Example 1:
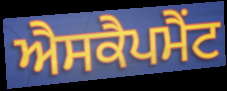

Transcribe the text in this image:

ਐਸਕੈਪਮੈਂਟ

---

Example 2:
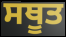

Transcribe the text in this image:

ਸਥੂਤ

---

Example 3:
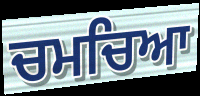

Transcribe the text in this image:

ਚਮਚਿਆ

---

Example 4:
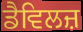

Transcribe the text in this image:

ਡੈਵਿਲਜ਼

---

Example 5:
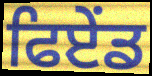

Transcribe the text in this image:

ਫਿਏਂਡ